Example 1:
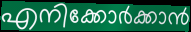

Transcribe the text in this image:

എനിക്കോർക്കാൻ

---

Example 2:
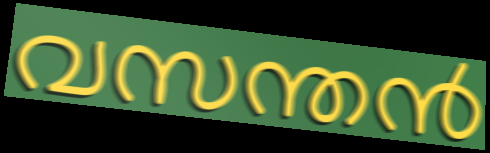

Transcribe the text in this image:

വസന്തൻ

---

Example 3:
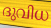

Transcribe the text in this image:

ദുവിധ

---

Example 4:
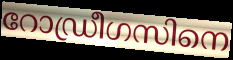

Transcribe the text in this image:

റോഡ്രീഗസിനെ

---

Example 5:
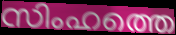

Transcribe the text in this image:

സിംഹത്തെ